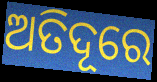
ଅତିଦୂରେ